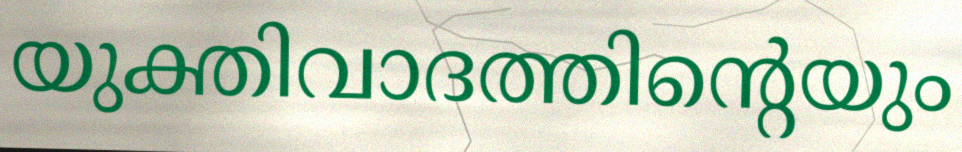
യുക്തിവാദത്തിന്റെയും